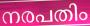
നരപതിം